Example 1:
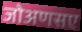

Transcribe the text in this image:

जोअणसए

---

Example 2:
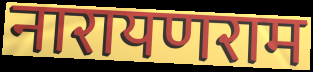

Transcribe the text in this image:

नारायणराम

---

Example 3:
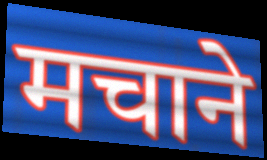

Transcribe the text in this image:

मचाने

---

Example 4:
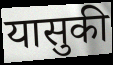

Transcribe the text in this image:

यासुकी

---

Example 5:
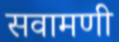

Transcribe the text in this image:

सवामणी